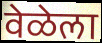
वेळेला